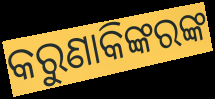
କରୁଣାକିଙ୍କରଙ୍କ